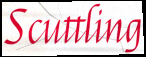
Scuttling